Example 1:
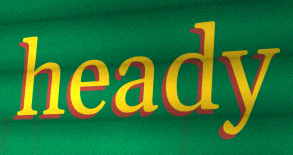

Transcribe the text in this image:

heady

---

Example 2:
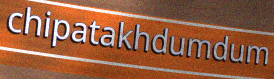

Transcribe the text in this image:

chipatakhdumdum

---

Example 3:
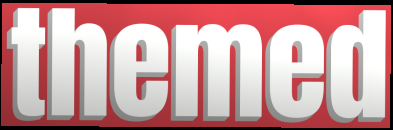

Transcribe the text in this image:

themed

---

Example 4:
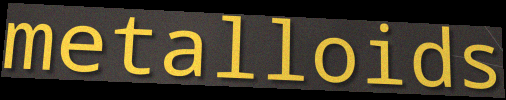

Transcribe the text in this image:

metalloids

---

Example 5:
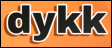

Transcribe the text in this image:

dykk